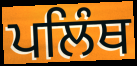
ਪਲਿੰਥ